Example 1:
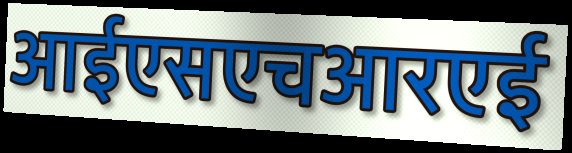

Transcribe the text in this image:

आईएसएचआरएई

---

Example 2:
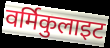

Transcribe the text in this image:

वर्मिकुलाइट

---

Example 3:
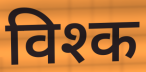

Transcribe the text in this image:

विश्क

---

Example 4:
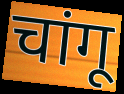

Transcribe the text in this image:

चांगू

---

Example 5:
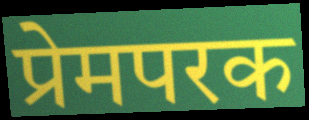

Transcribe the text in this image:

प्रेमपरक